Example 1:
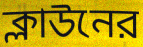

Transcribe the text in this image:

ক্লাউনের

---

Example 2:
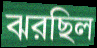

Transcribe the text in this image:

ঝরছিল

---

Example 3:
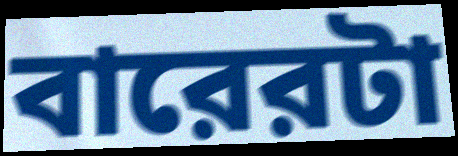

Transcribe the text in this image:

বারেরটা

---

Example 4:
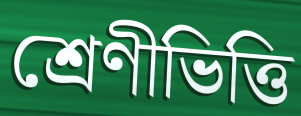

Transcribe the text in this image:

শ্রেণীভিত্তি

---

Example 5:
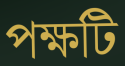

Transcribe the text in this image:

পক্ষটি